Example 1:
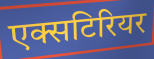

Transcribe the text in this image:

एक्सटिरियर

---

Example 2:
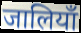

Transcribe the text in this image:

जालियाँ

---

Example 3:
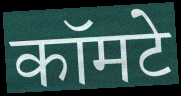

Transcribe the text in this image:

कॉमटे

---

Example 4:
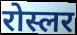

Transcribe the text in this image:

रोस्लर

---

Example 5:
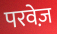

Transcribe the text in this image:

परवेज़